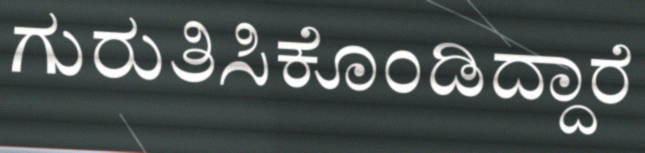
ಗುರುತಿಸಿಕೊಂಡಿದ್ದಾರೆ